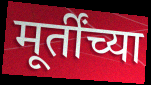
मूर्तींच्या